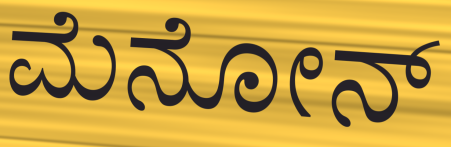
ಮೆನೋನ್